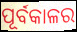
ପୂର୍ବକାଳର